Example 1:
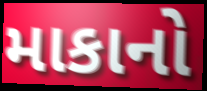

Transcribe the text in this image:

માકાનો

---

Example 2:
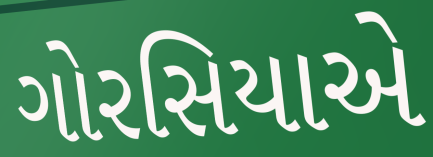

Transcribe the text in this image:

ગોરસિયાએ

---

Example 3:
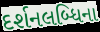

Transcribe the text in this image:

દર્શનલબ્ધિના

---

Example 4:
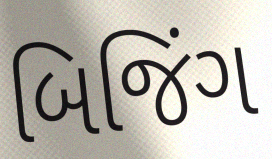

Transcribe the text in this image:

બિજિંગ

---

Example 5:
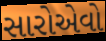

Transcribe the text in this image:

સારોએવો